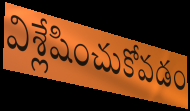
విశ్లేషించుకోవడం